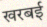
खरबई